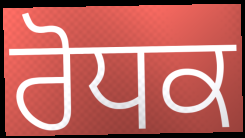
ਰੋਧਕ